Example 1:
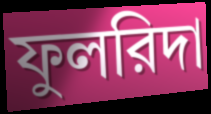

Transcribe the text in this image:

ফুলরিদা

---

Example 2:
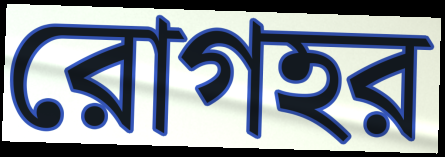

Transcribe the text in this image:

রোগহর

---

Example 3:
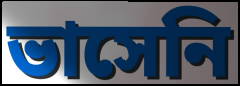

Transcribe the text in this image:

ভাসেনি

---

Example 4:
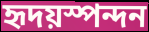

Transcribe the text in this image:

হৃদয়স্পন্দন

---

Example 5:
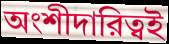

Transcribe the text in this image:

অংশীদারিত্বই